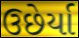
ઉછેર્યા